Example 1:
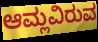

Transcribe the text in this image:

ಆಮ್ಲವಿರುವ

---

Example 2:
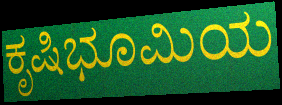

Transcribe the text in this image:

ಕೃಷಿಭೂಮಿಯ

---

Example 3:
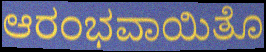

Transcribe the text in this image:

ಆರಂಭವಾಯಿತೊ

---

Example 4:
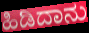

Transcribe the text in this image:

ಹಿಡಿದಾನು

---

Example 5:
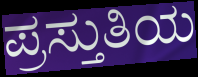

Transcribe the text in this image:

ಪ್ರಸ್ತುತಿಯ